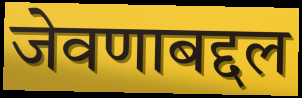
जेवणाबद्दल